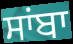
ਸਾਂਬਾ